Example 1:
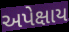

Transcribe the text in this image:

અપેક્ષાય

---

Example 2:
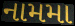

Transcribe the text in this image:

નામમા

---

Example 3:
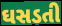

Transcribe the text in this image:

ઘસડતી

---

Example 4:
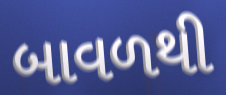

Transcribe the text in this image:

બાવળથી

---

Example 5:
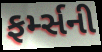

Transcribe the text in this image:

ફર્મ્સની